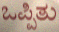
ಒಪ್ಪಿತು